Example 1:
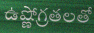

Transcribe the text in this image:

ఉష్ణోగ్రతలతో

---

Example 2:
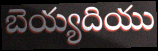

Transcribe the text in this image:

బెయ్యదియు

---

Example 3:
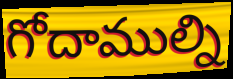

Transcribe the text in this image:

గోదాముల్ని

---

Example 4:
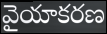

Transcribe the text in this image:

వైయాకరణ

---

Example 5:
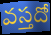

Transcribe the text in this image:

వస్తదో